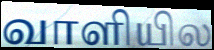
வாளியில